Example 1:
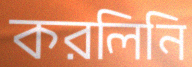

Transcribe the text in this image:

করলিনি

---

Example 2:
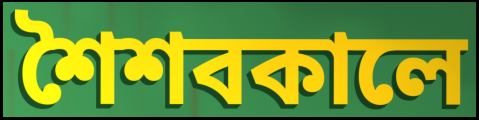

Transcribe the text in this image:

শৈশবকালে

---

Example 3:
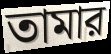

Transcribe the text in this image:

তামার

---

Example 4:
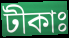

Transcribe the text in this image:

টীকাঃ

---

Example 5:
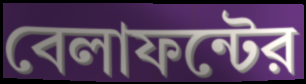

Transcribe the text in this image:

বেলাফন্টের